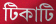
টিকাটি